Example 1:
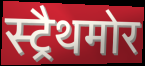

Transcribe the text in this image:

स्ट्रैथमोर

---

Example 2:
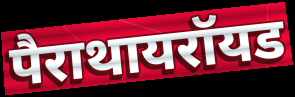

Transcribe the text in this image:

पैराथायरॉयड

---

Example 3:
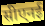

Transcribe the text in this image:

सीएनई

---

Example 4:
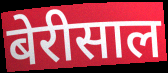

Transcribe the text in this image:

बेरीसाल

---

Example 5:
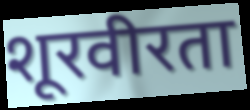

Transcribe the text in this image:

शूरवीरता